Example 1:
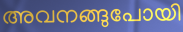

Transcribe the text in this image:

അവനങ്ങുപോയി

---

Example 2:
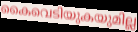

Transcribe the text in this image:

കൈവെടിയുകയുമില്ല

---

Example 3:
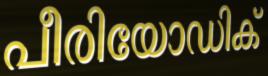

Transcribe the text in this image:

പീരിയോഡിക്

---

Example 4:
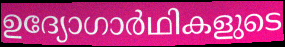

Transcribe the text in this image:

ഉദ്യോഗാർഥികളുടെ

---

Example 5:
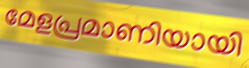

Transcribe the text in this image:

മേളപ്രമാണിയായി